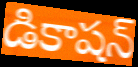
డికాషన్